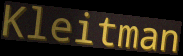
Kleitman